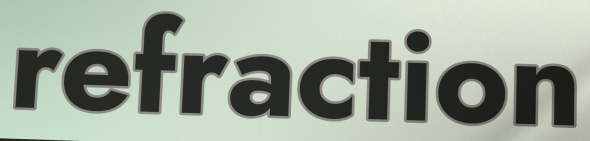
refraction